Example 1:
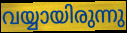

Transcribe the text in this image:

വയ്യായിരുന്നു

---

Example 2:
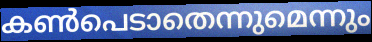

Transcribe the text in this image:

കൺപെടാതെന്നുമെന്നും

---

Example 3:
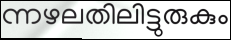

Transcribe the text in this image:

ന്നഴലതിലിട്ടുരുകും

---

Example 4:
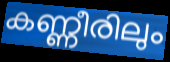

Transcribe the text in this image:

കണ്ണീരിലും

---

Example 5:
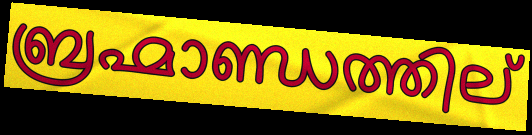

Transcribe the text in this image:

ബ്രഹ്മാണ്ഡത്തില്